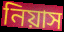
নিয়াস